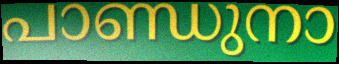
പാണ്ഡുനാ